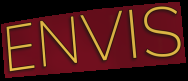
ENVIS